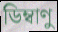
ডিম্বাণু